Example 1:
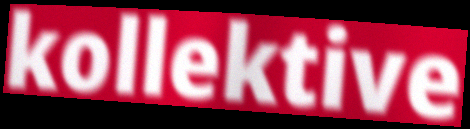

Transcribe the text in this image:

kollektive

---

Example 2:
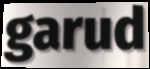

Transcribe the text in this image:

garud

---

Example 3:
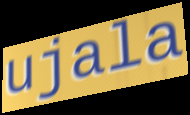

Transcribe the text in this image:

ujala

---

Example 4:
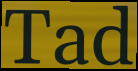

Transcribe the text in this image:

Tad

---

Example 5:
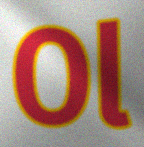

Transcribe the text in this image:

Ol